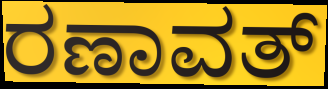
ರಣಾವತ್